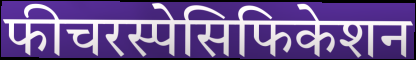
फीचरस्पेसिफिकेशन